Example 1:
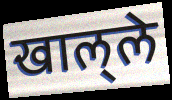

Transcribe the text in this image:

खाल्ले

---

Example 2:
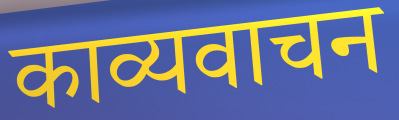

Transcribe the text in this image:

काव्यवाचन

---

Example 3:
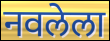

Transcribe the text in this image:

नवलेला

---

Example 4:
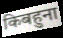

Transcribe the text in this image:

किबहुना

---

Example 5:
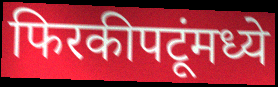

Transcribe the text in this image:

फिरकीपटूंमध्ये